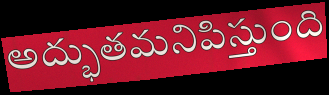
అద్భుతమనిపిస్తుంది